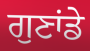
ਗੁਣਾਂਡੇ